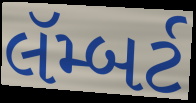
લૅમ્બર્ટ